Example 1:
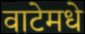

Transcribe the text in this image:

वाटेमधे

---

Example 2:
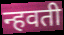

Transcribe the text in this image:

न्हवती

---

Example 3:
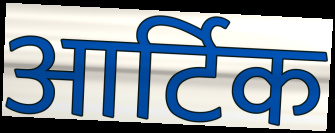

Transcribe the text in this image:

आर्टिक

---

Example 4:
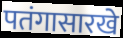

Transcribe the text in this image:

पतंगासारखे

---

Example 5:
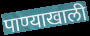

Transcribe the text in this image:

पाण्‍याखाली